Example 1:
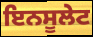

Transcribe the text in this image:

ਇਨਸੂਲੇਟ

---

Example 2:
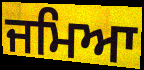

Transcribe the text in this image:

ਜਮਿਆ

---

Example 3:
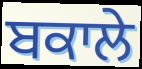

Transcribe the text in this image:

ਬਕਾਲੇ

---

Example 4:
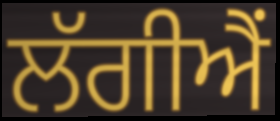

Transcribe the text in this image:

ਲੱਗੀਐਂ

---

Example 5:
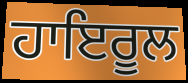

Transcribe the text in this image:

ਹਾਇਰੂਲ